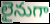
లైనుగా